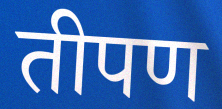
तीपण